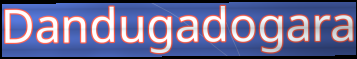
Dandugadogara